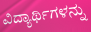
ವಿದ್ಯಾರ್ಥಿಗಳನ್ನು